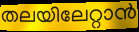
തലയിലേറ്റാൻ